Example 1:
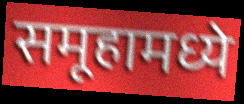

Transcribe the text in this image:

समूहामध्ये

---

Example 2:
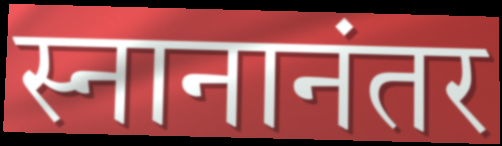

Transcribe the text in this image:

स्नानानंतर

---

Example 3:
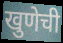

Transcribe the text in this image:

खुणेची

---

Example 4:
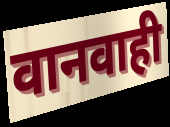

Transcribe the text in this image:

वानवाही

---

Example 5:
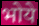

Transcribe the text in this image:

भोये